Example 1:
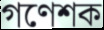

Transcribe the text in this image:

গণেশক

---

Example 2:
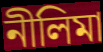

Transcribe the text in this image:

নীলিমা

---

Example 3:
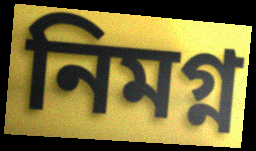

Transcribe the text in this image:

নিমগ্ন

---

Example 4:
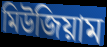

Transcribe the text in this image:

মিউজিয়াম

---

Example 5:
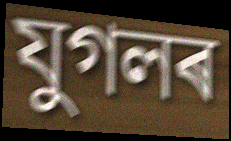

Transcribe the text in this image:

যুগলৰ